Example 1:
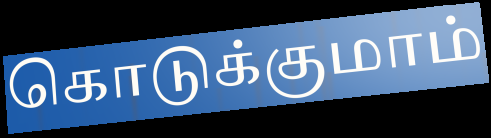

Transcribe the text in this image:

கொடுக்குமாம்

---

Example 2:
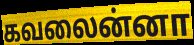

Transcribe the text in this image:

கவலைன்னா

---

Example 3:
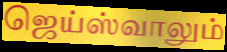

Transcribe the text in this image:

ஜெய்ஸ்வாலும்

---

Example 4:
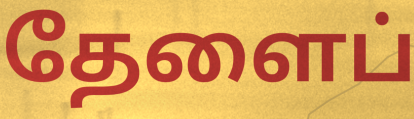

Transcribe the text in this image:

தேளைப்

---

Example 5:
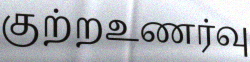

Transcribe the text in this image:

குற்றஉணர்வு